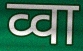
व्वा